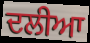
ਦਲੀਆ